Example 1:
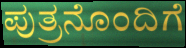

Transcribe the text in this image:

ಪುತ್ರನೊಂದಿಗೆ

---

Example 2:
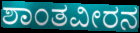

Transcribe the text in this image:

ಶಾಂತವೀರನ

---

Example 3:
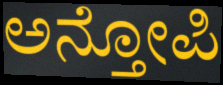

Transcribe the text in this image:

ಅನ್ತೋಪಿ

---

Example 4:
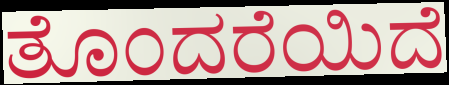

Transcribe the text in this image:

ತೊಂದರೆಯಿದೆ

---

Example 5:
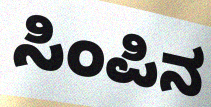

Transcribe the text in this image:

ಸಿಂಪಿನ